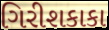
ગિરીશકાકા